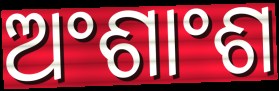
ଅଂଶାଂଶ